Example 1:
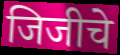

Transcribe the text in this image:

जिजीचे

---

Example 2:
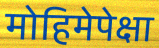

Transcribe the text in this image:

मोहिमेपेक्षा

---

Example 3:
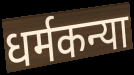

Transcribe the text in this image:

धर्मकन्या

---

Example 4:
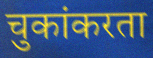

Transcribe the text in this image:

चुकांकरता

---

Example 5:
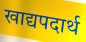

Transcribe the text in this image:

खाद्यपदार्थ